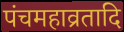
पंचमहाव्रतादि